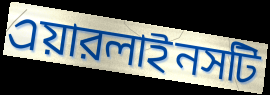
এয়ারলাইনসটি